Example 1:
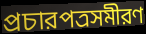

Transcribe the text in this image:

প্রচারপত্রসমীরণ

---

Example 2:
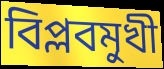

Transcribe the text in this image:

বিপ্লবমুখী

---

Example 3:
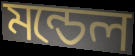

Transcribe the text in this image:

মন্ডেল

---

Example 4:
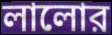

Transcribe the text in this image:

লালোর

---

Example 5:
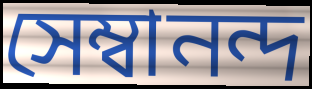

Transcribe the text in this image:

সেম্বানন্দ